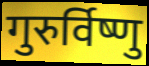
गुरुर्विष्णु